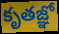
కృతజ్ఞో